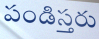
పండిస్తరు